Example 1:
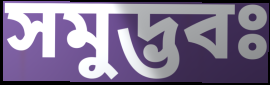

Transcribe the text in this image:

সমুদ্ভবঃ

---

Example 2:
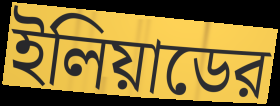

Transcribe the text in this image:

ইলিয়াডের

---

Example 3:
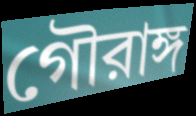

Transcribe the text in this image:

গৌরাঙ্গ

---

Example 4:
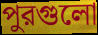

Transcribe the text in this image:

পুরগুলো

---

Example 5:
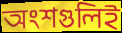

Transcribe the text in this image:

অংশগুলিই